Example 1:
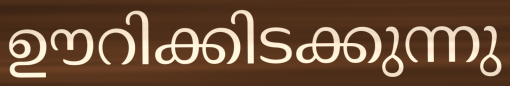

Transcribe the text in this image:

ഊറിക്കിടക്കുന്നു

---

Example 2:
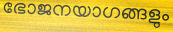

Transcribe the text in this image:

ഭോജനയാഗങ്ങളും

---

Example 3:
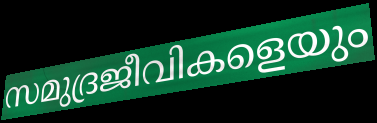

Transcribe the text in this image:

സമുദ്രജീവികളെയും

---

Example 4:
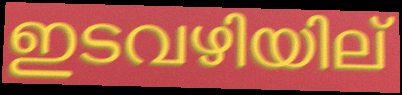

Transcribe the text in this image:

ഇടവഴിയില്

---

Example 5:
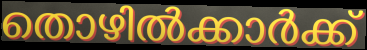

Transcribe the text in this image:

തൊഴിൽക്കാർക്ക്